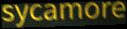
sycamore